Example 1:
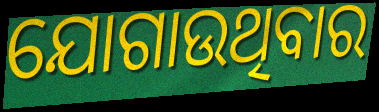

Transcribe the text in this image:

ଯୋଗାଉଥିବାର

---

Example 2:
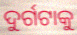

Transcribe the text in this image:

ଦୁର୍ଗଟାକୁ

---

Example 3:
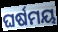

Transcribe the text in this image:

ଘର୍ଷମୟ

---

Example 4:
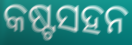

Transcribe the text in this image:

କଷ୍ଟସହନ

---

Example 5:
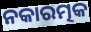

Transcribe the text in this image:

ନକାରତ୍ମକ